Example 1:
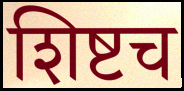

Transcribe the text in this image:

शिष्टच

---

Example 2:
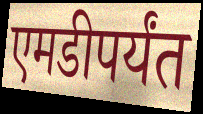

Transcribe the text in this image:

एमडीपर्यंत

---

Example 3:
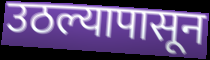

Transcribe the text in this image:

उठल्यापासून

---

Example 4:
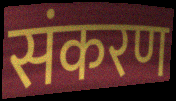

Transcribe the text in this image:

संकरण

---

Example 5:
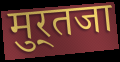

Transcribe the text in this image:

मुर्तजा